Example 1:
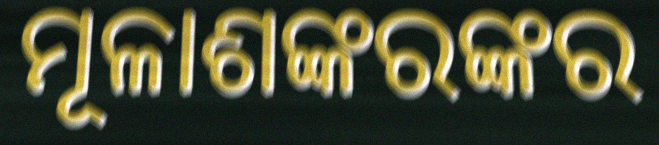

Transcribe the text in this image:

ମୂଳାଶଙ୍କରଙ୍କର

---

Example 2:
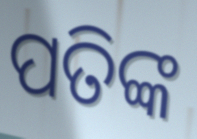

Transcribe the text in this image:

ପତିଙ୍କ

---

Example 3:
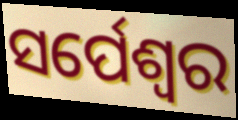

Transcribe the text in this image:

ସର୍ପେଶ୍ୱର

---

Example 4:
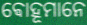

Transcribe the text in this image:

ଵୋହୂମାନେ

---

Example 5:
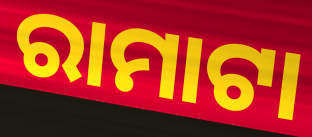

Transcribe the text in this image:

ରାମାଟା